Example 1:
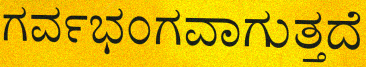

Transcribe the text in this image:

ಗರ್ವಭಂಗವಾಗುತ್ತದೆ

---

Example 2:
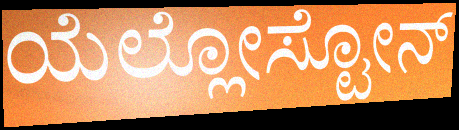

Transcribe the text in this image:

ಯೆಲ್ಲೋಸ್ಟೋನ್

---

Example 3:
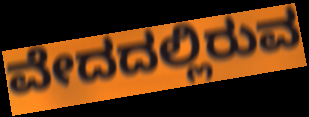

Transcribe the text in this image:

ವೇದದಲ್ಲಿರುವ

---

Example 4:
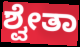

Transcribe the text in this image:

ಶ್ವೇತಾ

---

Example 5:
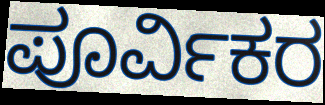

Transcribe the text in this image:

ಪೂರ್ವಿಕರ